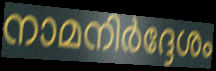
നാമനിർദ്ദേശം